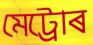
মেট্ৰোৰ